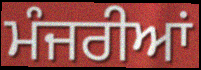
ਮੰਜਰੀਆਂ